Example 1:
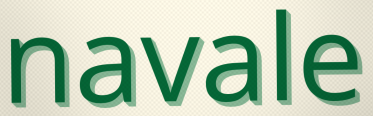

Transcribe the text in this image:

navale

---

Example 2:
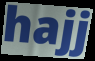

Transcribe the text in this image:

hajj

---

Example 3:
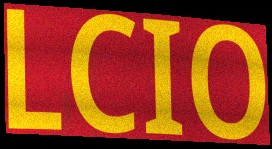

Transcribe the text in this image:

LCIO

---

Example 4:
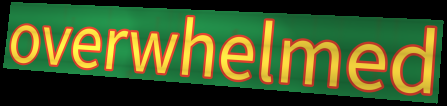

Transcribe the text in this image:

overwhelmed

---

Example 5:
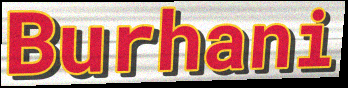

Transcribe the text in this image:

Burhani